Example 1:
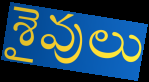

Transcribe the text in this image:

శైవులు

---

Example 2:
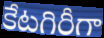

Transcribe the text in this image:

కేటగిరీగా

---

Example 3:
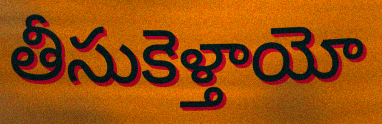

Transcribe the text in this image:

తీసుకెళ్తాయో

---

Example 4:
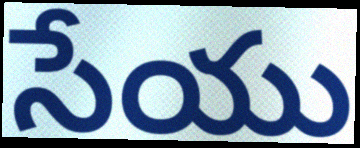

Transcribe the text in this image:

సేయు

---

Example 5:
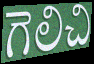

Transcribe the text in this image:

గెలిచి